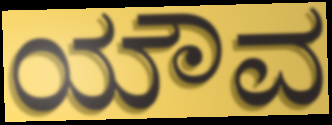
ಯೌವ